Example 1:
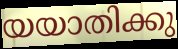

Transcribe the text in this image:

യയാതിക്കു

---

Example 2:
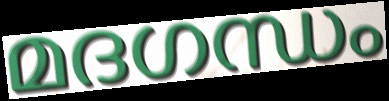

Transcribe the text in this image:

മദഗന്ധം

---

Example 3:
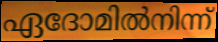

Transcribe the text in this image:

ഏദോമിൽനിന്ന്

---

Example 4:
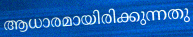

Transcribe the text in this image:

ആധാരമായിരിക്കുന്നതു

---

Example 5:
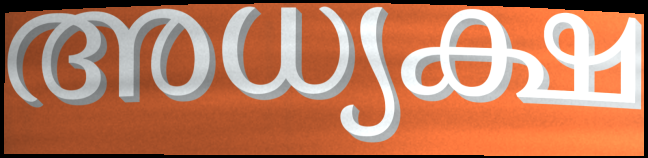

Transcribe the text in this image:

അധ്യക്ഷ